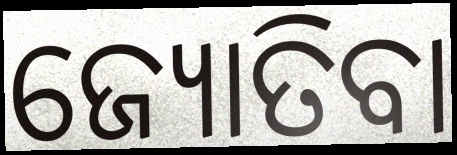
ଜ୍ୟୋତିବା